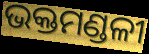
ଭକ୍ତମଣ୍ଡଳୀ